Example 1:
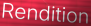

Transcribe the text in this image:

Rendition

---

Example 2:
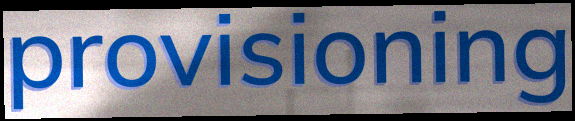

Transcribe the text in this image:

provisioning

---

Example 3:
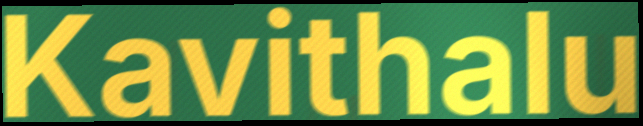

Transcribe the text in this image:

Kavithalu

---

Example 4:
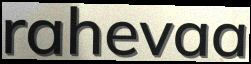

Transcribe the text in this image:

rahevaa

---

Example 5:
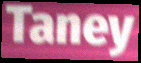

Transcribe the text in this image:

Taney